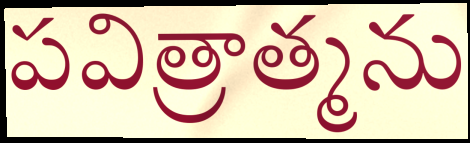
పవిత్రాత్మను